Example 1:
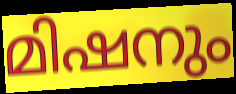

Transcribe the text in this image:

മിഷനും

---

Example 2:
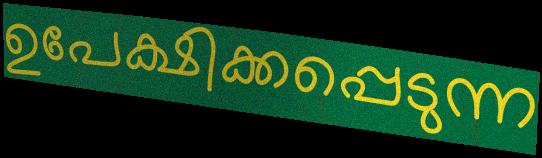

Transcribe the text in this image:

ഉപേക്ഷിക്കപ്പെടുന്ന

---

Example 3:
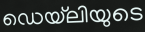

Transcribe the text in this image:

ഡെയ്‌ലിയുടെ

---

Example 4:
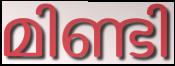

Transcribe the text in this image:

മിണ്ടി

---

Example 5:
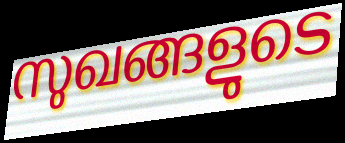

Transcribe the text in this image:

സുഖങ്ങളുടെ